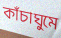
কাঁচাঘুমে